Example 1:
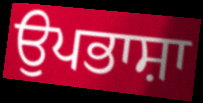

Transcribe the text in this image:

ਉਪਭਾਸ਼ਾ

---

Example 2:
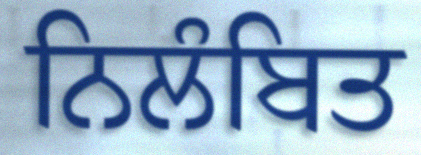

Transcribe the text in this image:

ਨਿਲੰਬਿਤ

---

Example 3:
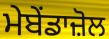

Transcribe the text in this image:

ਮੇਬੇਂਡਾਜ਼ੋਲ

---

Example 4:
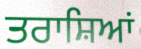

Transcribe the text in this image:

ਤਰਾਸ਼ਿਆਂ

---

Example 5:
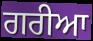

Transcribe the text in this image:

ਗਰੀਆ